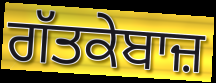
ਗੱਤਕੇਬਾਜ਼